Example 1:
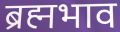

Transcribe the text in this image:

ब्रह्मभाव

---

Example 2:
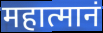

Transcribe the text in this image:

महात्मानं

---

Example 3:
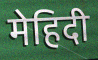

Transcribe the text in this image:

मेहिदी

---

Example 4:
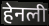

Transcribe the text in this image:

हेनली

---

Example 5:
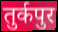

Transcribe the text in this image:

तुर्कपुर